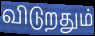
விடுறதும்